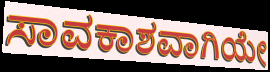
ಸಾವಕಾಶವಾಗಿಯೇ